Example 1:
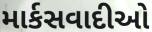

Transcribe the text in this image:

માર્કસવાદીઓ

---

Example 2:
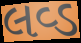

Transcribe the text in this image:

લવ્ડ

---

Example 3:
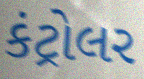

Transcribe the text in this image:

કંટ્રોલર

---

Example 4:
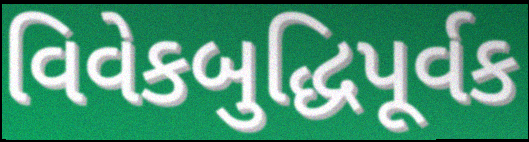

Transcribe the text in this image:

વિવેકબુદ્ધિપૂર્વક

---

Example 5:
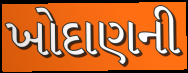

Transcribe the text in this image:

ખોદાણની